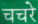
चचरे